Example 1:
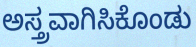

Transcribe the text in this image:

ಅಸ್ತ್ರವಾಗಿಸಿಕೊಂಡು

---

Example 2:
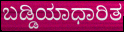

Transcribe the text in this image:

ಬಡ್ಡಿಯಾಧಾರಿತ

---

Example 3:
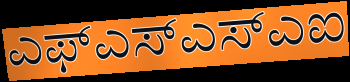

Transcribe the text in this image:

ಎಫ್ಎಸ್ಎಸ್ಎಐ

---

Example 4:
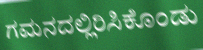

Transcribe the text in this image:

ಗಮನದಲ್ಲಿರಿಸಿಕೊಂಡು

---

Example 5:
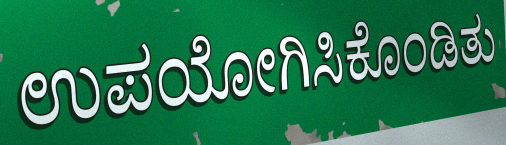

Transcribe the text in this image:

ಉಪಯೋಗಿಸಿಕೊಂಡಿತು